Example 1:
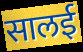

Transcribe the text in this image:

सालई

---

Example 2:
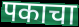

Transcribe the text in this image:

पकाचा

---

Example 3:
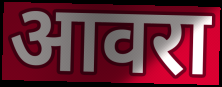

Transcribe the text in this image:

आवरा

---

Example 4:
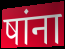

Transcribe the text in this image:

षांना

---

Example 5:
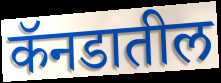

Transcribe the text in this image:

कॅनडातील